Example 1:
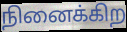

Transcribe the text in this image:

நினைக்கிற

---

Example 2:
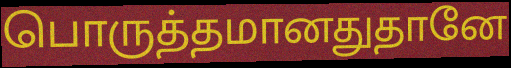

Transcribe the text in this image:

பொருத்தமானதுதானே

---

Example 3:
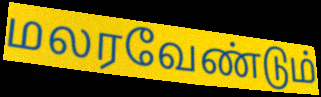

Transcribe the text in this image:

மலரவேண்டும்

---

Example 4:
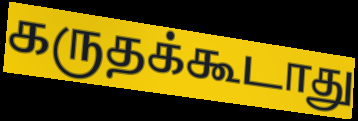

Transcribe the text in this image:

கருதக்கூடாது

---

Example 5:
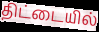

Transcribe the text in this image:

திட்டையில்